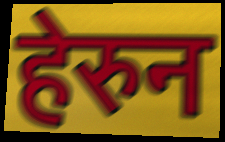
हेरुन